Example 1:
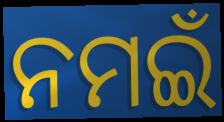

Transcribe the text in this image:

ନମଇଁ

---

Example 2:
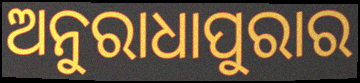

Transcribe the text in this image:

ଅନୁରାଧାପୁରାର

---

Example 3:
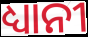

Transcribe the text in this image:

ଧ୍ୟାନୀ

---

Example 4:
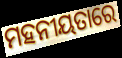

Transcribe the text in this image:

ମହନୀୟତାରେ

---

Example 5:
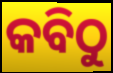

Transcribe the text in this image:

କବିଠୁ